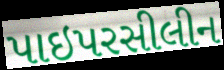
પાઇપરસીલીન